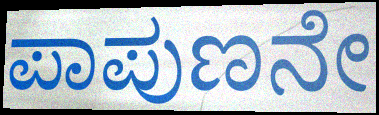
ಪಾಪುಣನೇ